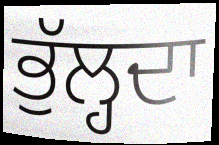
ਭੁੱਲ੍ਹਦਾ